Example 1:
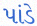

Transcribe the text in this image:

પાંડે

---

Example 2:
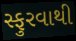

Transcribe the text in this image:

સ્ફુરવાથી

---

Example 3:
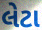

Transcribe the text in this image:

લેટા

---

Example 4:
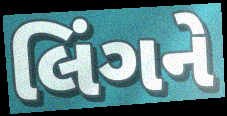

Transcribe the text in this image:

લિંગને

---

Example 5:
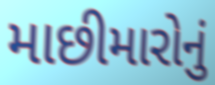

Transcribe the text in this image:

માછીમારોનું